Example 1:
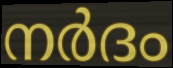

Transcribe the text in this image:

നർദം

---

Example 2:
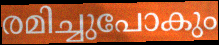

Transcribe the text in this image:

രമിച്ചുപോകും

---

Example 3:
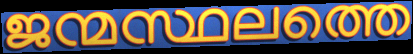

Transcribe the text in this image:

ജന്മസ്ഥലത്തെ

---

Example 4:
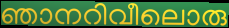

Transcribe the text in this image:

ഞാനറിവീലൊരു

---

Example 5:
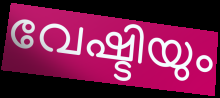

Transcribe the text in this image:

വേഷ്ടിയും